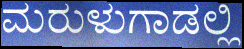
ಮರುಳುಗಾಡಲ್ಲಿ